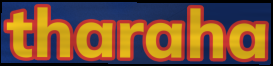
tharaha